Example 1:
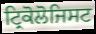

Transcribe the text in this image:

ਟ੍ਰਿਕੋਲੋਜਿਸਟ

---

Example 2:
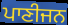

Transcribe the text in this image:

ਪਾਣੀਜਨ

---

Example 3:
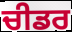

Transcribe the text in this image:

ਚੀਡਰ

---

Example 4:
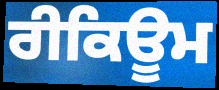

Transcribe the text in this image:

ਰੀਕਿਊਮ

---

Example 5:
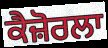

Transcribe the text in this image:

ਕੈਜ਼ੋਰਲਾ